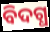
ବିଦଗ୍ଧ